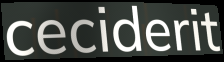
ceciderit